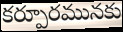
కర్పూరమునకు